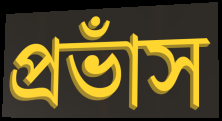
প্রভাঁস